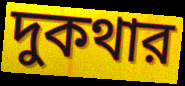
দুকথার